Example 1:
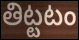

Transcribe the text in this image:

తిట్టటం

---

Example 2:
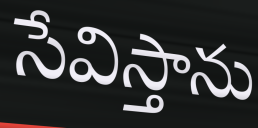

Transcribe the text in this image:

సేవిస్తాను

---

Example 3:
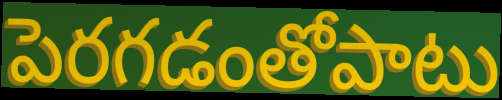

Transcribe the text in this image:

పెరగడంతోపాటు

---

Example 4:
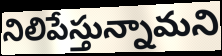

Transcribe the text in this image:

నిలిపేస్తున్నామని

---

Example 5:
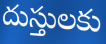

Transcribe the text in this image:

దుస్తులకు